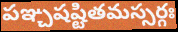
పఞ్చషష్టితమస్సర్గః